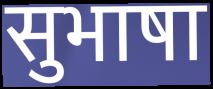
सुभाषा